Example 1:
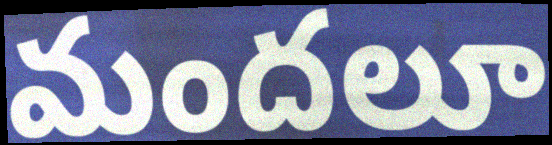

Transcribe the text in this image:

మందలూ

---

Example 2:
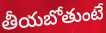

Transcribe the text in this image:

తీయబోతుంటే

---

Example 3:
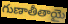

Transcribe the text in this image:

గుణాతీతాయై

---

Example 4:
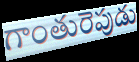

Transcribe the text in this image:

గాంతురెపుడు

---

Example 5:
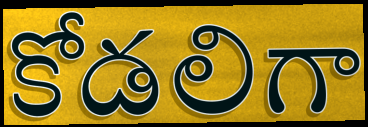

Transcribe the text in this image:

కోడలిగా